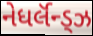
નેધર્લૅન્ડ્ઝ